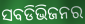
ସବଡିଭିଜନର